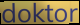
doktor